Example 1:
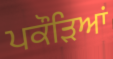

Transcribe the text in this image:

ਪਕੌਡ਼ਿਆਂ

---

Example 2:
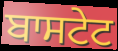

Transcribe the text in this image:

ਬਾਸਟੇਟ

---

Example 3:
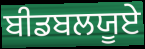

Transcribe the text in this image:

ਬੀਡਬਲਯੂਏ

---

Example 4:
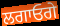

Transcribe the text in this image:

ਲਗਾਓਗੇ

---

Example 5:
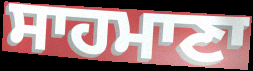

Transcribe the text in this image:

ਸਾਹਮਾਣਾ